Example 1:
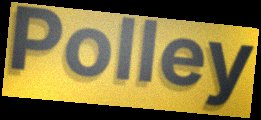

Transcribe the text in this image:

Polley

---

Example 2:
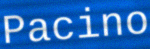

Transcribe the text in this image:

Pacino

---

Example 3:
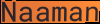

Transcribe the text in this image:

Naaman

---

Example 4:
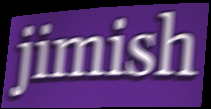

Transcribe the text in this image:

jimish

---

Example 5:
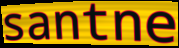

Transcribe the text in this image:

santne